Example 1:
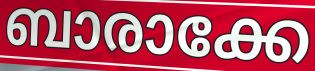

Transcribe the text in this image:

ബാരാക്കേ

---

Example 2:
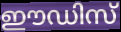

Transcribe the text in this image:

ഈഡിസ്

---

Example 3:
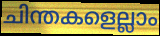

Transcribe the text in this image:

ചിന്തകളെല്ലാം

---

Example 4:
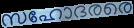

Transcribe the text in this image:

സഹോദരരെ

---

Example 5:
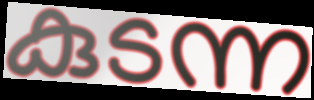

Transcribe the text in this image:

കുടന്ന